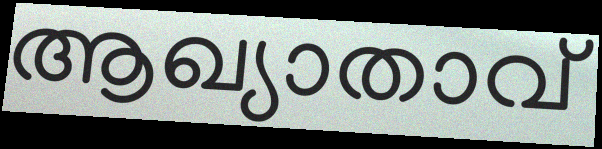
ആഖ്യാതാവ്